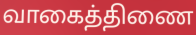
வாகைத்திணை